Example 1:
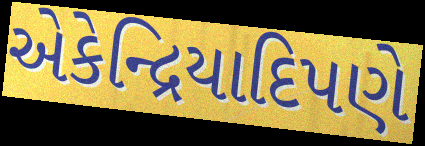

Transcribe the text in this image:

એકેન્દ્રિયાદિપણે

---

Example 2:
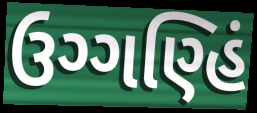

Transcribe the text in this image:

ઉગ્ગણ્હિં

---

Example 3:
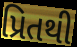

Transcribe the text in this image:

પ્રિતથી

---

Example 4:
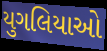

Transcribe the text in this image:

યુગલિયાઓ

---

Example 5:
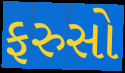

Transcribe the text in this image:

ફરુસો